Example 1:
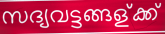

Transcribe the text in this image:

സദ്യവട്ടങ്ങള്ക്ക്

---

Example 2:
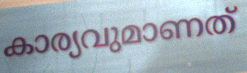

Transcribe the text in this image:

കാര്യവുമാണത്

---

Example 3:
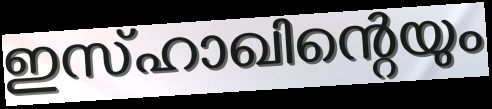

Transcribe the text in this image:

ഇസ്ഹാഖിന്റെയും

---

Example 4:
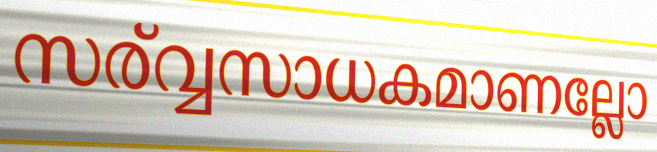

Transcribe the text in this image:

സര്വ്വസാധകമാണല്ലോ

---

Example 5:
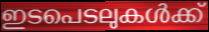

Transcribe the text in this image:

ഇടപെടലുകൾക്ക്